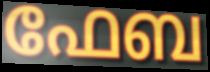
ഫേബ